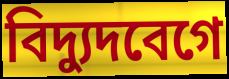
বিদ্যুদবেগে